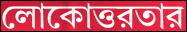
লোকোত্তরতার